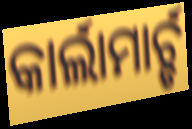
କାର୍ଲାମାର୍ଚ୍ଚ